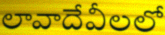
లావాదేవీలలో